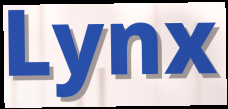
Lynx